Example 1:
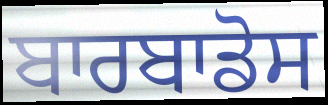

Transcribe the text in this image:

ਬਾਰਬਾਡੋਸ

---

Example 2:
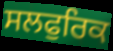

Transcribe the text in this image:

ਸਲਫੁਰਿਕ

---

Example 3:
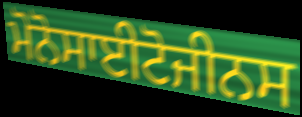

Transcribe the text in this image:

ਮੋਨੋਸਾਈਟੋਜੀਨਸ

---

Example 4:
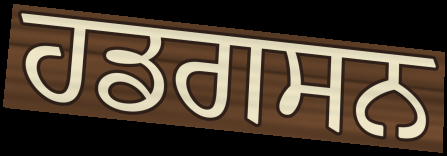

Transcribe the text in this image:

ਹਡਗਸਨ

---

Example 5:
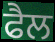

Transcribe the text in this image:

ਫੈਲ